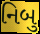
નિબુ